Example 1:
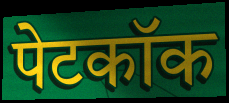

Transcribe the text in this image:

पेटकॉक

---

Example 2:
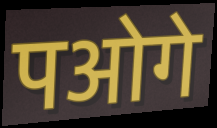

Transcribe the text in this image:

पओगे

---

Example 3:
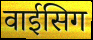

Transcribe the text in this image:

वाईसिग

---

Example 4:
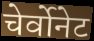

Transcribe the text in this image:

चेर्वोनेट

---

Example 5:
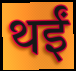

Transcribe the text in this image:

थईं